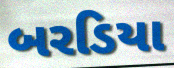
બરડિયા